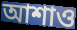
আশাও